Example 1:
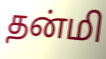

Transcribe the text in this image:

தன்மி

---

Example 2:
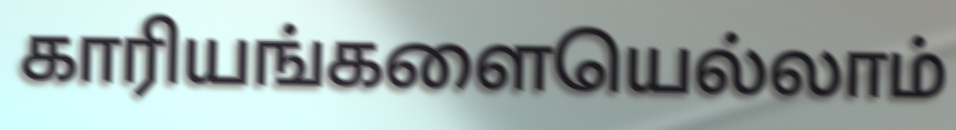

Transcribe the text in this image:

காரியங்களையெல்லாம்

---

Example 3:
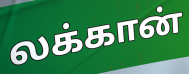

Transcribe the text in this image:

லக்கான்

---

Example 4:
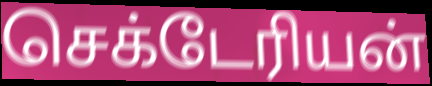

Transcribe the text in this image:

செக்டேரியன்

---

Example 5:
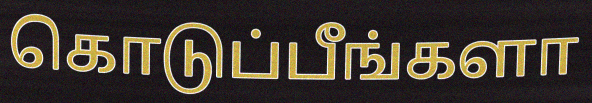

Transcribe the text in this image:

கொடுப்பீங்களா